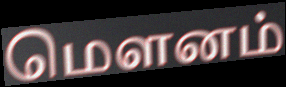
மௌனம்